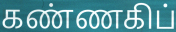
கண்ணகிப்